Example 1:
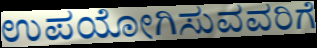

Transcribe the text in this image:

ಉಪಯೋಗಿಸುವವರಿಗೆ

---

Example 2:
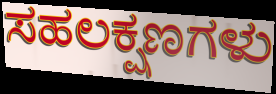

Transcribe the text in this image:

ಸಹಲಕ್ಷಣಗಳು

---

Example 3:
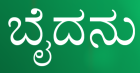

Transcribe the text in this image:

ಬೈದನು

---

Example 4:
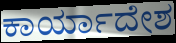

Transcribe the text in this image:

ಕಾರ್ಯಾದೇಶ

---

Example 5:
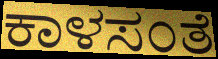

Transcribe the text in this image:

ಕಾಳಸಂತೆ